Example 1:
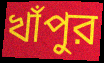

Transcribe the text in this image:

খাঁপুর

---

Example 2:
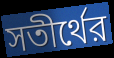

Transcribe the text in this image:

সতীর্থের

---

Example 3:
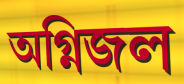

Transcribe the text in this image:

অগ্নিজল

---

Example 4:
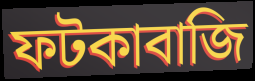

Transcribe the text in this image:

ফটকাবাজি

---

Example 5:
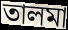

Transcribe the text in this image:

তালমা